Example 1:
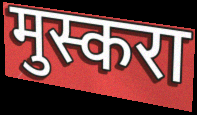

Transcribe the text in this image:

मुस्करा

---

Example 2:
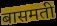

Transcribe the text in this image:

बासमती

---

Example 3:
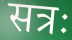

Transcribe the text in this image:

सत्रः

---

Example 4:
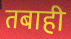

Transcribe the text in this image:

तबाही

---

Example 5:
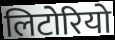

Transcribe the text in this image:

लिटोरियो